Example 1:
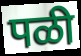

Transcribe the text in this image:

पळी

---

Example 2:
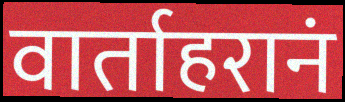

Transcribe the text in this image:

वार्ताहरानं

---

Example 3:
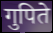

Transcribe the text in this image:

गुपिते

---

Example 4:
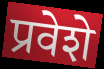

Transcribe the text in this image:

प्रवेशे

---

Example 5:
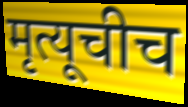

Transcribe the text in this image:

मृत्यूचीच